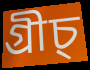
গ্ৰীচ্